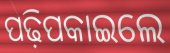
ପଢ଼ିପକାଇଲେ